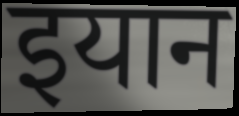
इयान